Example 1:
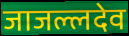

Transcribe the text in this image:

जाजल्लदेव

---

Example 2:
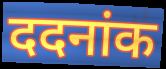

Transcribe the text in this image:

ददनांक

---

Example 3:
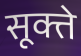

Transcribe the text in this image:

सूक्ते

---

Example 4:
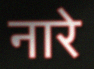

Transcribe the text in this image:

नारे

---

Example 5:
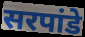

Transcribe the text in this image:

सरपांडे